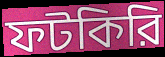
ফটকিরি